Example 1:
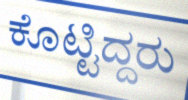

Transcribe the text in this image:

ಕೊಟ್ಟಿದ್ದರು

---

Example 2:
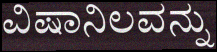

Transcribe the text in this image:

ವಿಷಾನಿಲವನ್ನು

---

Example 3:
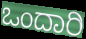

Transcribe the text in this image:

ಒಂದಾರಿ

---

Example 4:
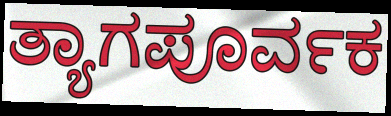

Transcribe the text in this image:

ತ್ಯಾಗಪೂರ್ವಕ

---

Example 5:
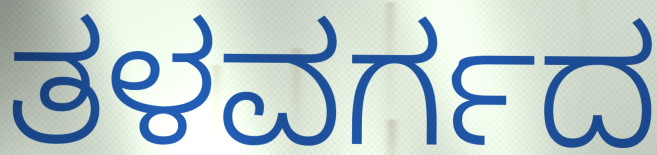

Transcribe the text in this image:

ತಳವರ್ಗದ